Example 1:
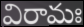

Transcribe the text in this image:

విరామః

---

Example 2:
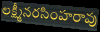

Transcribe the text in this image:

లక్ష్మీనరసింహరావు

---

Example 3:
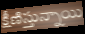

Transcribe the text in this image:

క్షీణిస్తున్నాయి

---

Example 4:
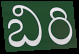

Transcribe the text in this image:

బిరి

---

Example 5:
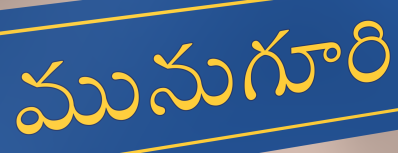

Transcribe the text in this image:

మునుగూరి